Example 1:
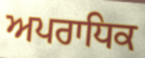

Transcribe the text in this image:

ਅਪਰਾਧਿਕ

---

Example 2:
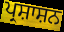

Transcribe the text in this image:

ਪ੍ਰਸ਼ਾਸ਼ਨ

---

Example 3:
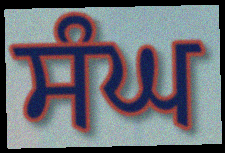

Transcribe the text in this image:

ਸੰਘ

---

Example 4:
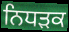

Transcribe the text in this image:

ਨਿਧਡ਼ਕ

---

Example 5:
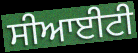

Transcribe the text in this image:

ਸੀਆਈਟੀ